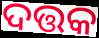
ଦତ୍ତକ